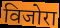
विजोरा